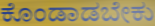
ಕೊಂಡಾಡಬೇಕು